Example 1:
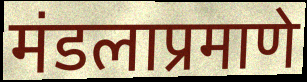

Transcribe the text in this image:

मंडलाप्रमाणे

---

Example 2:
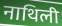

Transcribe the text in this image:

नाथिली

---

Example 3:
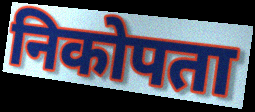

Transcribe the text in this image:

निकोपता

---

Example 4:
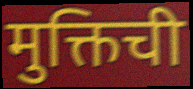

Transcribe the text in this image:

मुक्तिची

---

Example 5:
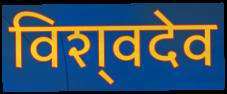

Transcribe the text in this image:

विश्वदेव